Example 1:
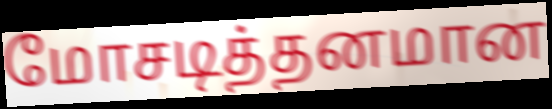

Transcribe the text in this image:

மோசடித்தனமான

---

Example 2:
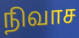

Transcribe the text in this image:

நிவாச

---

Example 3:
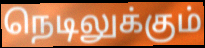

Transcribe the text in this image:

நெடிலுக்கும்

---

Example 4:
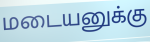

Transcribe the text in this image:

மடையனுக்கு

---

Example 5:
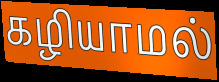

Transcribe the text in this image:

கழியாமல்